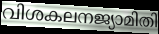
വിശകലനജ്യാമിതി